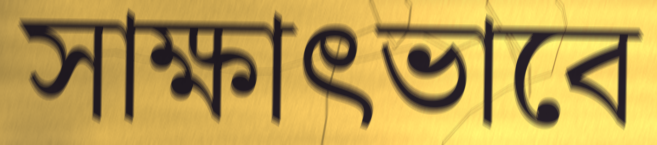
সাক্ষাৎভাবে